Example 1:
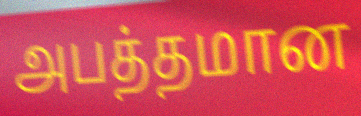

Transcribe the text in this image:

அபத்தமான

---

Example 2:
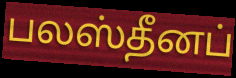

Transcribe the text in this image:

பலஸ்தீனப்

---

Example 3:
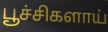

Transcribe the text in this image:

பூச்சிகளாய்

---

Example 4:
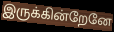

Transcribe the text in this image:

இருக்கின்றேனே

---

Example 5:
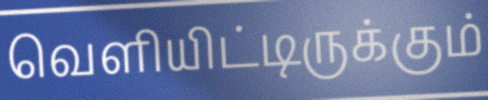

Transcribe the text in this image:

வெளியிட்டிருக்கும்